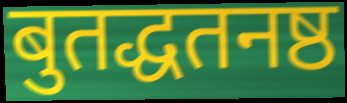
बुतद्धतनष्ठ